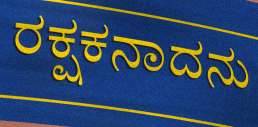
ರಕ್ಷಕನಾದನು